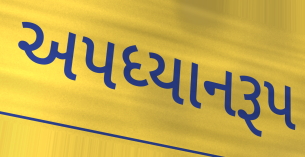
અપધ્યાનરૂપ